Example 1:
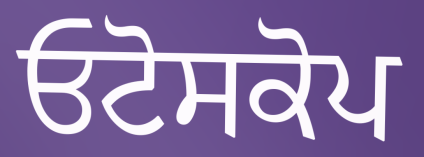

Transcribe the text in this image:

ਓਟੋਸਕੋਪ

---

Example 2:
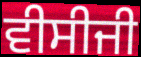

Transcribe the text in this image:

ਵੀਸੀਜੀ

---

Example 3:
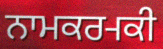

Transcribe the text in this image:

ਨਾਮਕਰ੍ਮਕੀ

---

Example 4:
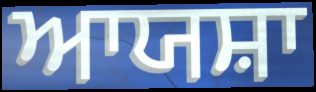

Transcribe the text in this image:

ਆਯਸ਼ਾ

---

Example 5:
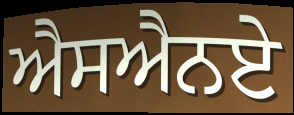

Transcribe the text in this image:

ਐਸਐਨਏ